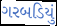
ગરબડિયું